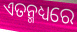
ଏତନ୍ମଧ୍ୟରେ